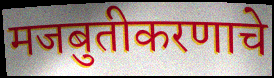
मजबुतीकरणाचे